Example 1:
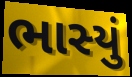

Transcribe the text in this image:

ભાસ્યું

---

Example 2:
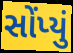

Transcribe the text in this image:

સોંપ્યું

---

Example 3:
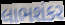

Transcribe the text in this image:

લાભશંકર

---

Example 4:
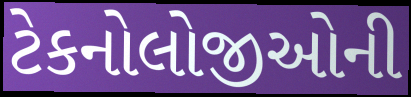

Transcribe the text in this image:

ટેકનોલોજીઓની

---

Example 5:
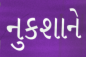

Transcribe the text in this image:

નુકશાને